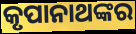
କୃପାନାଥଙ୍କର